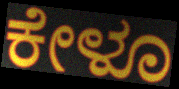
ಕೇಳೂ